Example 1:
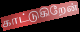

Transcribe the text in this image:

காட்டுகிறேன்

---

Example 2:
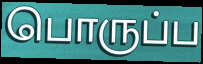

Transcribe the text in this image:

பொருப்ப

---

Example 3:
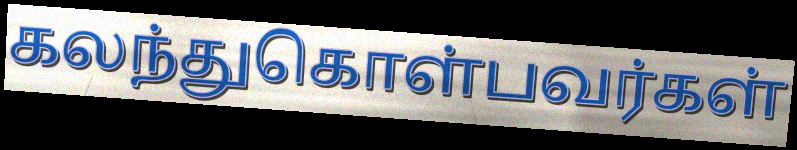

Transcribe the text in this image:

கலந்துகொள்பவர்கள்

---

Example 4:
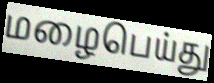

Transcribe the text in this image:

மழைபெய்து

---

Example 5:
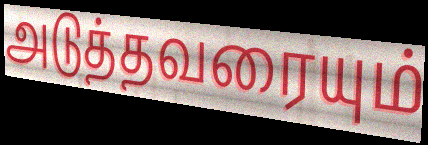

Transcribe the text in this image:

அடுத்தவரையும்